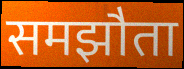
समझौता